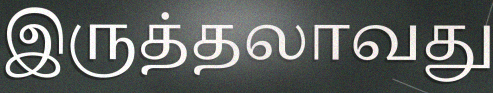
இருத்தலாவது